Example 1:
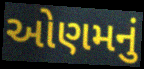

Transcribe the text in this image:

ઓણમનું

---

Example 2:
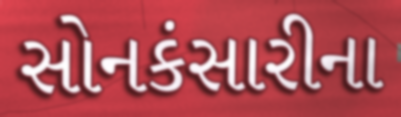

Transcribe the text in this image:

સોનકંસારીના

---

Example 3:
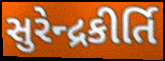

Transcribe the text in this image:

સુરેન્દ્રકીર્તિ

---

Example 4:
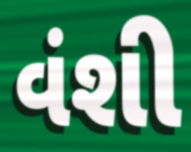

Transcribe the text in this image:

વંશી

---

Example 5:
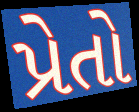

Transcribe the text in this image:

પ્રેતો